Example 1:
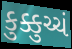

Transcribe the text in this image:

કુક્કુચ્ચં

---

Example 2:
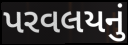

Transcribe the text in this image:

પરવલયનું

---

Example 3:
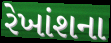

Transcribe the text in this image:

રેખાંશના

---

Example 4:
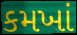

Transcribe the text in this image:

કમખાં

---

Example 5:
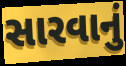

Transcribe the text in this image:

સારવાનું